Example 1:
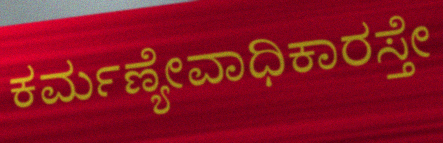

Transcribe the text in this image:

ಕರ್ಮಣ್ಯೇವಾಧಿಕಾರಸ್ತೇ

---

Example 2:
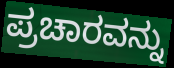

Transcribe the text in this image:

ಪ್ರಚಾರವನ್ನು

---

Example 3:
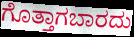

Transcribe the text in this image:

ಗೊತ್ತಾಗಬಾರದು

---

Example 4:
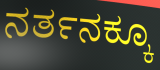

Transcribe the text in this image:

ನರ್ತನಕ್ಕೂ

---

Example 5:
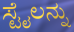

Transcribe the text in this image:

ಸ್ಟೈಲನ್ನು